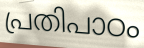
പ്രതിപാഠം